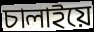
চালাইয়ে